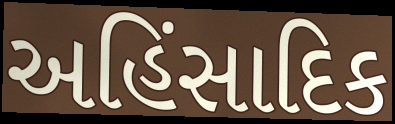
અહિંસાદિક